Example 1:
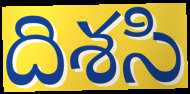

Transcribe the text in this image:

దిశసి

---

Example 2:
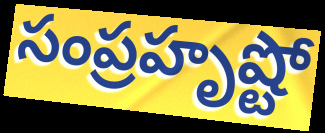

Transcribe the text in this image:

సంప్రహృష్టో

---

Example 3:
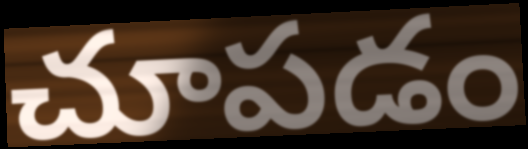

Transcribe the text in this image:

చూపడం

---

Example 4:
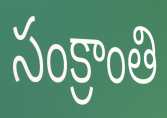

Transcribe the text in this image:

సంక్రాంతి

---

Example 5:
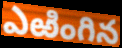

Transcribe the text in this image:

ఎఱింగిన